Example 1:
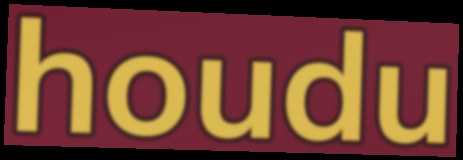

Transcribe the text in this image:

houdu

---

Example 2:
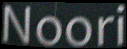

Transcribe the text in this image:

Noori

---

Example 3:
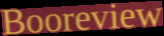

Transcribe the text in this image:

Booreview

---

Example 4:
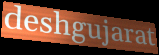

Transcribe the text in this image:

deshgujarat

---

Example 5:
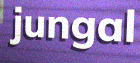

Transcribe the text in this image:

jungal